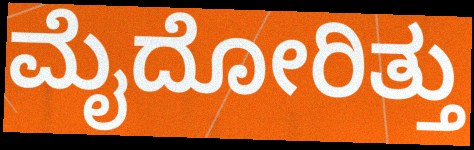
ಮೈದೋರಿತ್ತು